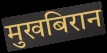
मुखबिरान